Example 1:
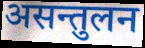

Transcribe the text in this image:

असन्तुलन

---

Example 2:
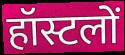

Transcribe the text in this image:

हॉस्टलों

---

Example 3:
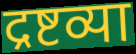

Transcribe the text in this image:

द्रष्टव्या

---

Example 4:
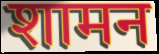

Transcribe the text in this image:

शामन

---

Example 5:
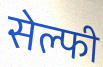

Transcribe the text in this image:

सेल्फी